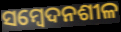
ସମ୍ବେଦନଶୀଳ